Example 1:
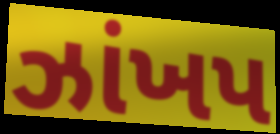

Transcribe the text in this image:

ઝાંખપ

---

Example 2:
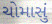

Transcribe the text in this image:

ચોમાસું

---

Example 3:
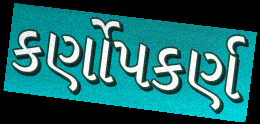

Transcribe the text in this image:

કર્ણોપકર્ણ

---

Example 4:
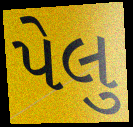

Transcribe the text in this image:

પેલુ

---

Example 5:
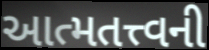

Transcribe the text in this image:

આત્મતત્ત્વની